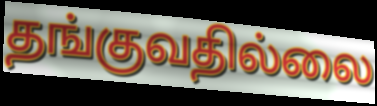
தங்குவதில்லை